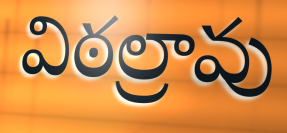
విఠల్రావు